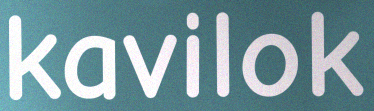
kavilok